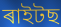
ৰাইটছ